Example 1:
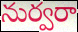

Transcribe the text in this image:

నుర్వరా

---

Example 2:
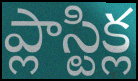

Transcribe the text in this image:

ప్లాస్టిక్ల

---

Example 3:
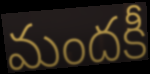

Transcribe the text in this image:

మందకీ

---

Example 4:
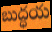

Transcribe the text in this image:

బుద్ధయ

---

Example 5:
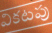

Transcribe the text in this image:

వికటపు